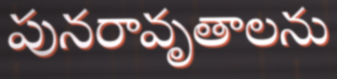
పునరావృతాలను